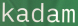
kadam